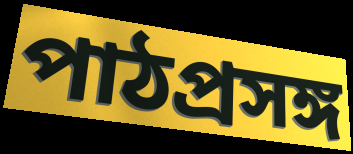
পাঠপ্রসঙ্গ